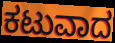
ಕಟುವಾದ